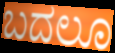
ಬದಲೂ